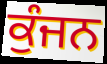
ਕੁੰਜਨ